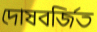
দোষবর্জিত